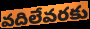
వదిలేవరకు